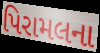
પિરામલના